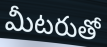
మీటరుతో